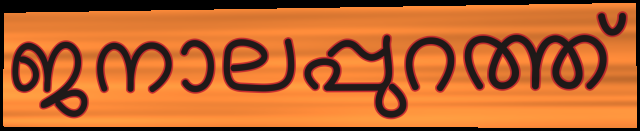
ജനാലപ്പുറത്ത്